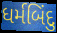
ધર્મબિંદુ